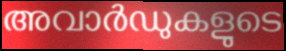
അവാർഡുകളുടെ